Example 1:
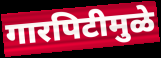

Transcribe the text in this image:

गारपिटीमुळे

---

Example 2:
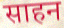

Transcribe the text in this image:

साहन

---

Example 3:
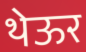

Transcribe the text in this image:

थेऊर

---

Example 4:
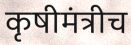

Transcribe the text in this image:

कृषीमंत्रीच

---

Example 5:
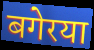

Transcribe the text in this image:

बगेरया